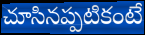
చూసినప్పటికంటే